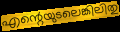
എന്റെയുടലെങ്കിലിതു